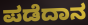
ಪಡೆದಾನ